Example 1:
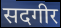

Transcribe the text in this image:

सदगीर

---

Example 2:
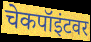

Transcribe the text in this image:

चेकपॉइंटवर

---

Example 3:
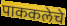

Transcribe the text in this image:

पाककलेचे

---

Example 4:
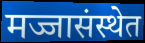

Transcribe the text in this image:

मज्जासंस्थेत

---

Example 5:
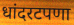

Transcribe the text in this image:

धांदरटपणा